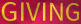
GIVING